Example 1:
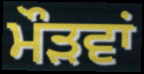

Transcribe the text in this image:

ਮੌੜਵਾਂ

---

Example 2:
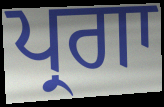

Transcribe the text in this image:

ਪ੍ਰਗਾ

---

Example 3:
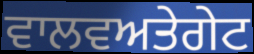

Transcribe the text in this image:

ਵਾਲਵਅਤੇਗੇਟ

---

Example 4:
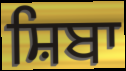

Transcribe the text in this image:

ਸ਼ਿਬਾ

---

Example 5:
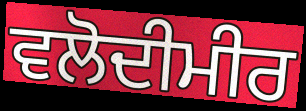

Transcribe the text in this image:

ਵਲੋਦੀਮੀਰ